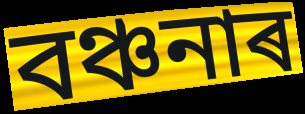
বঞ্চনাৰ